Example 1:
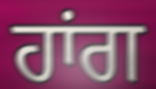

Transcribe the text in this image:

ਹਾਂਗ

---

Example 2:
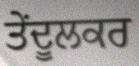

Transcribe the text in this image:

ਤੇਂਦੂਲਕਰ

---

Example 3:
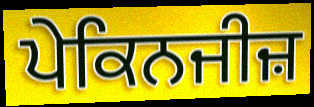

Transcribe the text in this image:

ਪੇਕਿਨਜੀਜ਼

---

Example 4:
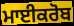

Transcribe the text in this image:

ਮਾਈਕਰੋਬ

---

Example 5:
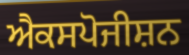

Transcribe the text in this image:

ਐਕਸਪੋਜੀਸ਼ਨ